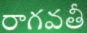
రాగవతీ